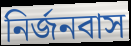
নির্জনবাস